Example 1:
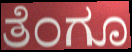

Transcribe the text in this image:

ತೆಂಗೂ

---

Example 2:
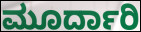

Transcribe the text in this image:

ಮೂರ್ದಾರಿ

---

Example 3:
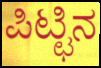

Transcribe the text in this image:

ಪಿಟ್ಟಿನ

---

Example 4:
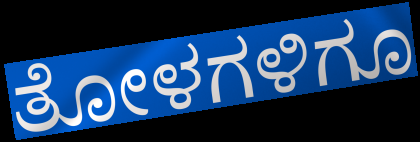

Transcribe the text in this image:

ತೋಳಗಳಿಗೂ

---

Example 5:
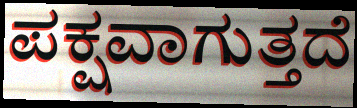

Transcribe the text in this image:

ಪಕ್ಷವಾಗುತ್ತದೆ